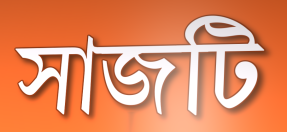
সাজটি